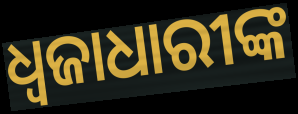
ଧ୍ୱଜାଧାରୀଙ୍କ